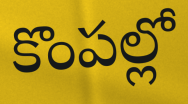
కొంపల్లో